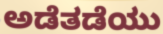
ಅಡೆತಡೆಯು